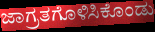
ಜಾಗ್ರತಗೊಳಿಸಿಕೊಂಡು